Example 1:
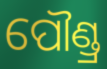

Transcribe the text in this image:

ପୌଣ୍ଡ୍ର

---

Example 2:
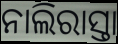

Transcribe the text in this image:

ନାଲିରାସ୍ତା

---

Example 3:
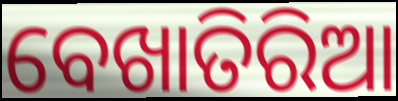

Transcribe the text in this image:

ବେଖାତିରିଆ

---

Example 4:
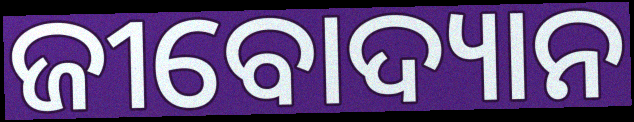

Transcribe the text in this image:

ଜୀବୋଦ୍ୟାନ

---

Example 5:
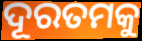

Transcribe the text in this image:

ଦୂରତମକୁ